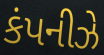
કંપનીઝે